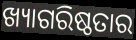
ଖ୍ୟାଗରିଷ୍ଠତାର